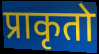
प्राकृतो